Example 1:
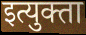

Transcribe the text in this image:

इत्युक्ता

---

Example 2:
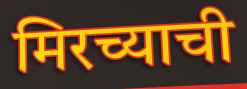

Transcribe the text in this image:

मिरच्याची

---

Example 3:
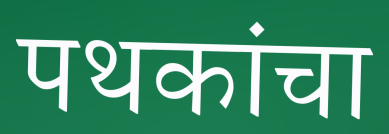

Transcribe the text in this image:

पथकांचा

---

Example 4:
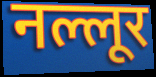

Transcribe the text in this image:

नल्लूर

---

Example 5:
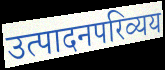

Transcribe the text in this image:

उत्पादनपरिव्यय